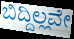
ಬಿದ್ದಿಲ್ಲವೇ